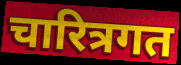
चारित्रगत